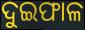
ଦୁଇଫାଳ